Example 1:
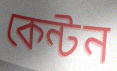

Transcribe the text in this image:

কেন্টন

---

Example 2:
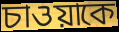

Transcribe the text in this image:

চাওয়াকে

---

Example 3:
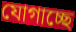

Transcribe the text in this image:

যোগাচ্ছে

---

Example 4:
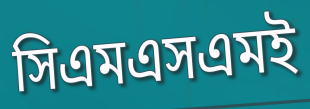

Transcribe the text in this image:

সিএমএসএমই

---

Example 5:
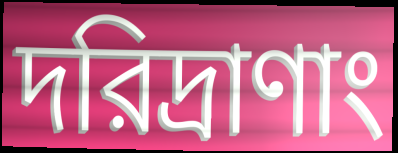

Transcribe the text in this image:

দরিদ্রাণাং